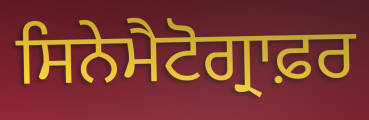
ਸਿਨੇਮੈਟੋਗ੍ਰਾਫ਼ਰ